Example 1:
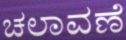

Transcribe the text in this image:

ಚಲಾವಣೆ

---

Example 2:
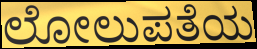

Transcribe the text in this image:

ಲೋಲುಪತೆಯ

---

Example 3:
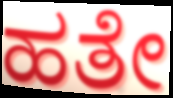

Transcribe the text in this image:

ಹತೇ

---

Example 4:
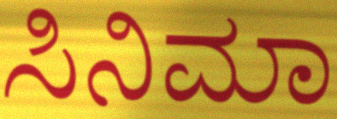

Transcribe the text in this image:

ಸಿನಿಮಾ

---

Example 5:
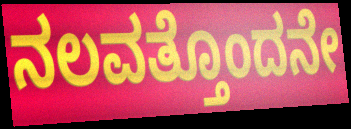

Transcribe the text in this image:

ನಲವತ್ತೊಂದನೇ